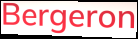
Bergeron